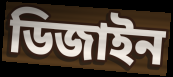
ডিজাইন